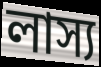
লাস্য